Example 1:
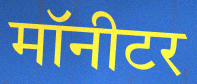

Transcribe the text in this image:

मॉनीटर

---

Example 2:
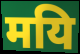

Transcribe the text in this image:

मयि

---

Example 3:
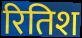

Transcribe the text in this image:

रितिश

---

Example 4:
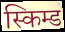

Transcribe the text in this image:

स्किम्ड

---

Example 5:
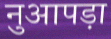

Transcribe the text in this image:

नुआपड़ा